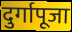
दुर्गापूजा